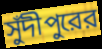
সুঁদীপুরের